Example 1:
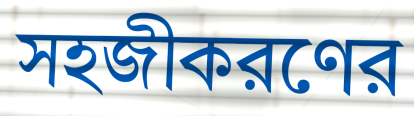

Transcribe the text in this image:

সহজীকরণের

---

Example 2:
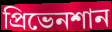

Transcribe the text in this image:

প্রিভেনশান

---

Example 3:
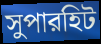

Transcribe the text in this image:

সুপারহিট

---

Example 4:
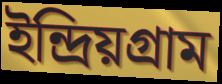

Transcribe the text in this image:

ইন্দ্রিয়গ্রাম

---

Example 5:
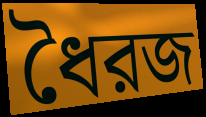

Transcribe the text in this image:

ধৈরজ